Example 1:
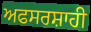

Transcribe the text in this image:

ਅਫਸਰਸ਼ਾਹੀ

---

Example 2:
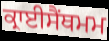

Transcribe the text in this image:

ਕ੍ਰਾਈਸੈਂਥਮਮ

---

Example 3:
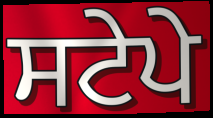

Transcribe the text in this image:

ਸਟੇਪੇ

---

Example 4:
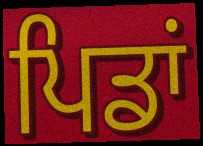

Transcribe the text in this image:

ਪਿਡਾਂ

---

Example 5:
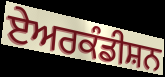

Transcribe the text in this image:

ਏਅਰਕੰਡੀਸ਼ਨ